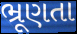
ભ્રૂણતા